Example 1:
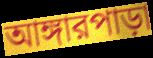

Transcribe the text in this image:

আঙ্গারপাড়া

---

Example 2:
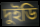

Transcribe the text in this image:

দুইডি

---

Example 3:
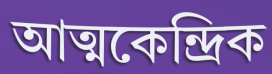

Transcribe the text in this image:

আত্মকেন্দ্রিক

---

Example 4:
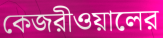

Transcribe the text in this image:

কেজরীওয়ালের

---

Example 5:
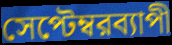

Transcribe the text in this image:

সেপ্টেম্বরব্যাপী